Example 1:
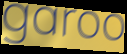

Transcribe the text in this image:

garoo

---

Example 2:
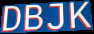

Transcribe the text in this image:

DBJK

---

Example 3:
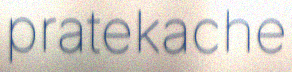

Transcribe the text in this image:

pratekache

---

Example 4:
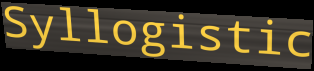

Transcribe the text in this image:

Syllogistic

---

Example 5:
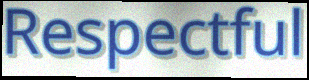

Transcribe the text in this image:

Respectful